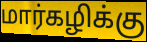
மார்கழிக்கு